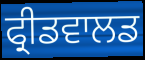
ਫ੍ਰੀਡਵਾਲਡ